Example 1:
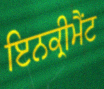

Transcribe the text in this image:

ਇਨਕ੍ਰੀਮੈਂਟ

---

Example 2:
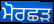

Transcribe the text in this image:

ਮੋਰਛੜ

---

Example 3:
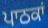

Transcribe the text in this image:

ਪਾਠਕਾਂ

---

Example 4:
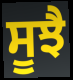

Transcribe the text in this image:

ਸੂਝੈ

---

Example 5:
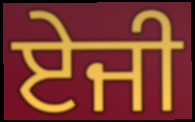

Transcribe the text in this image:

ਏਜੀ